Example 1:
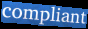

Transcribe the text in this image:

compliant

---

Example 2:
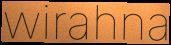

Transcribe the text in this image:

wirahna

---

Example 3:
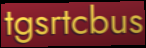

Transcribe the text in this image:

tgsrtcbus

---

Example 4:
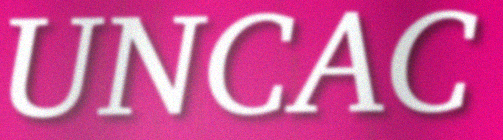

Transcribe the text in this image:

UNCAC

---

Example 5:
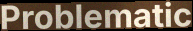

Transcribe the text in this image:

Problematic